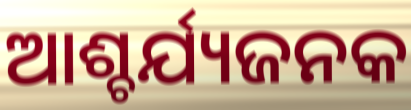
ଆଶ୍ଚର୍ଯ୍ୟଜନକ